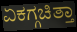
ಏಕಗ್ಗಚಿತ್ತಾ